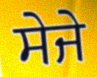
ਸੇਜੇ